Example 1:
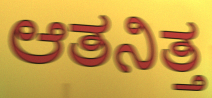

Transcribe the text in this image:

ಆತನಿತ್ತ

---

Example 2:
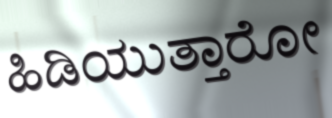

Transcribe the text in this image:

ಹಿಡಿಯುತ್ತಾರೋ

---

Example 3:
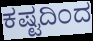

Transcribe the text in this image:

ಕಷ್ಟದಿಂದ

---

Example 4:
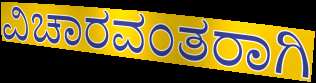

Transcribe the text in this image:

ವಿಚಾರವಂತರಾಗಿ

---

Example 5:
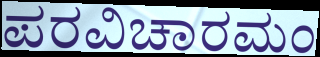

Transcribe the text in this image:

ಪರವಿಚಾರಮಂ